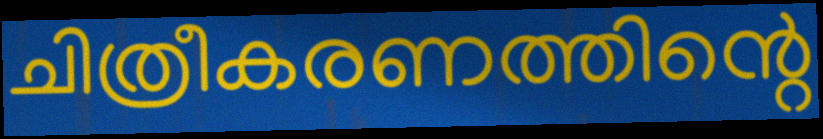
ചിത്രീകരണത്തിന്റെ